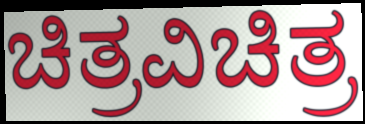
ಚಿತ್ರವಿಚಿತ್ರ